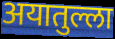
अयातुल्ला